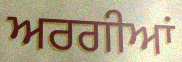
ਅਰਗੀਆਂ